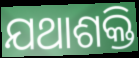
ଯଥାଶକ୍ତି